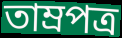
তাম্রপত্র